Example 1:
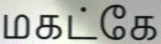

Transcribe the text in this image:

மகட்கே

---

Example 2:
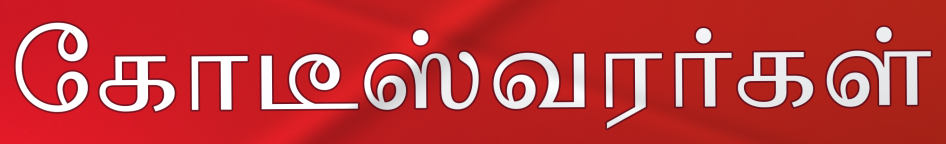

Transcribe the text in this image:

கோடீஸ்வரர்கள்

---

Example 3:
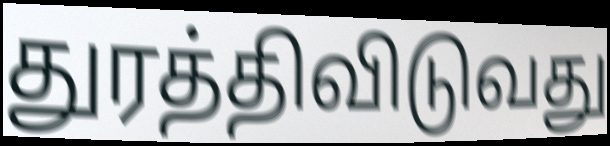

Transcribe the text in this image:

துரத்திவிடுவது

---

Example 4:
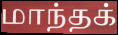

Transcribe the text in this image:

மாந்தக்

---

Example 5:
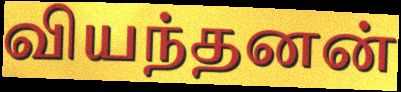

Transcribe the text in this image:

வியந்தனன்